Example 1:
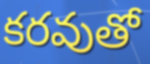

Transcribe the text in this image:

కరవుతో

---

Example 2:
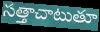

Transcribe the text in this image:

సత్తాచాటుతూ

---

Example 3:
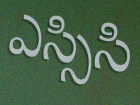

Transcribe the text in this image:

ఎస్సిసి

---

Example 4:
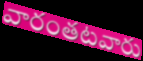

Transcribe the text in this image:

వారంతటవారు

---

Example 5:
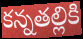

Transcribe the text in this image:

కన్నతల్లికి